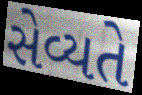
સેવ્યતે